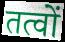
तत्वों